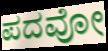
ಪದವೋ